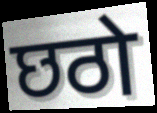
छठो